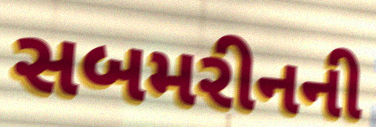
સબમરીનની